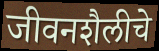
जीवनशैलीचे